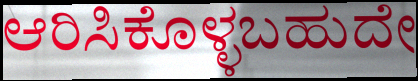
ಆರಿಸಿಕೊಳ್ಳಬಹುದೇ